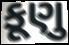
કૂણુ